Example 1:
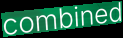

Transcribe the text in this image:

combined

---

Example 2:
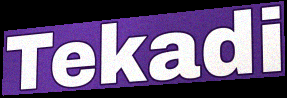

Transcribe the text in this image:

Tekadi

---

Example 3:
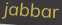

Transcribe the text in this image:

jabbar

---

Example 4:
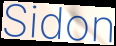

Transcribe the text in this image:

Sidon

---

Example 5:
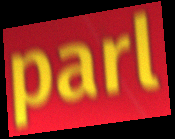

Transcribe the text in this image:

parl